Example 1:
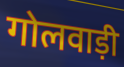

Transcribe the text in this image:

गोलवाड़ी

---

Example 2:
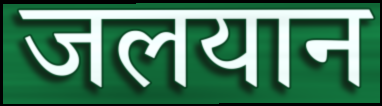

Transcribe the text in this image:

जलयान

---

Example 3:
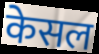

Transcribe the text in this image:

केसल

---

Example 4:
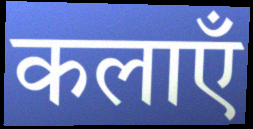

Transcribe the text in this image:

कलाएँ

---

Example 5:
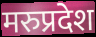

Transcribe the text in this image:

मरुप्रदेश